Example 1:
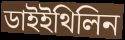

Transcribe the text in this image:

ডাইইথিলিন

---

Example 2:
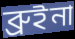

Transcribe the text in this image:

ব্রুইনা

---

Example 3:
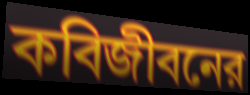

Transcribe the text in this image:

কবিজীবনের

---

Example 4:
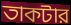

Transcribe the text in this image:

তাকটার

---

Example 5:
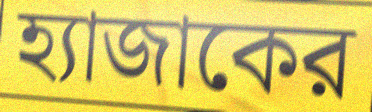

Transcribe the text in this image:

হ্যাজাকের